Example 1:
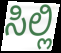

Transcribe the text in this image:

ಸಿಲ್ಲಿ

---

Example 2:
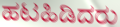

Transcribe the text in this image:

ಹಟಹಿಡಿದರು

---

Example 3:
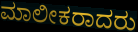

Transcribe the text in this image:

ಮಾಲೀಕರಾದರು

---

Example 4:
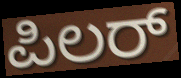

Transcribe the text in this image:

ಪಿಲರ್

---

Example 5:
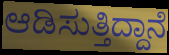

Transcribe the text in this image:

ಆಡಿಸುತ್ತಿದ್ದಾನೆ